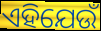
ଏହିଯେଉଁ